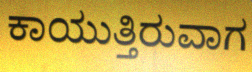
ಕಾಯುತ್ತಿರುವಾಗ